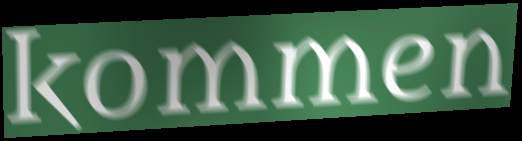
kommen